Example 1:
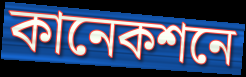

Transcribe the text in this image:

কানেকশনে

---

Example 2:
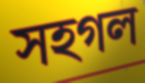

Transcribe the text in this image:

সহগল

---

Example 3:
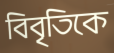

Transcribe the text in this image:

বিবৃতিকে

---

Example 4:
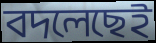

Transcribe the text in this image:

বদলেছেই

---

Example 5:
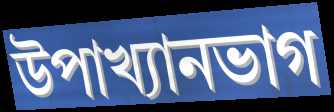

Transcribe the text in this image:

উপাখ্যানভাগ